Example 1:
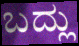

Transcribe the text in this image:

ಬದ್ಲು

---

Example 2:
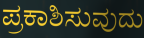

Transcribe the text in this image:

ಪ್ರಕಾಶಿಸುವುದು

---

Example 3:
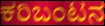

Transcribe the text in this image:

ಕರಿಬಂಟನ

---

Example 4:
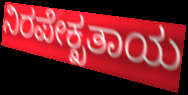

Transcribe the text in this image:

ನಿರಪೇಕ್ಖತಾಯ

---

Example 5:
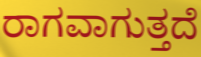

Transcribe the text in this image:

ರಾಗವಾಗುತ್ತದೆ